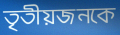
তৃতীয়জনকে